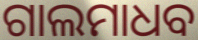
ଗାଲମାଧବ